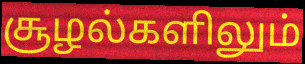
சூழல்களிலும்